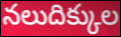
నలుదిక్కుల